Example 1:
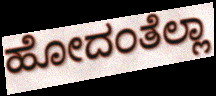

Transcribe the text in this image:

ಹೋದಂತೆಲ್ಲಾ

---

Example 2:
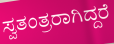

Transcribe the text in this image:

ಸ್ವತಂತ್ರರಾಗಿದ್ದರೆ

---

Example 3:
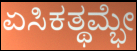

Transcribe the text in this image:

ಏಸಿಕತ್ಥಮ್ಭೇ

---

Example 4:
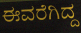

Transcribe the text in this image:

ಈವರೆಗಿದ್ದ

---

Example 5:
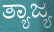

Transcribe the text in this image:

ತ್ಯಾಜ್ಯ